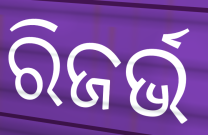
ରିଜର୍ଭ